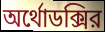
অর্থোডক্সির